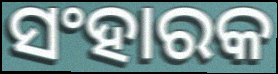
ସଂହାରକ